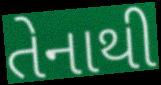
તેનાથી